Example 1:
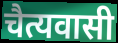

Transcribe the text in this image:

चैत्यवासी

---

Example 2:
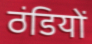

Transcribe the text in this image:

ठंडियों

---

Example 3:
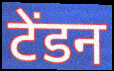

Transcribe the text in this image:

टेंडन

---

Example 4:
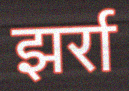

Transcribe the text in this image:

झर्रा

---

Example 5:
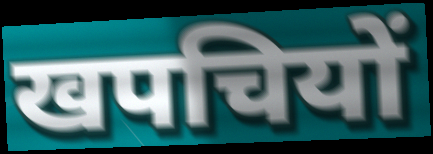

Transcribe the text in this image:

खपचियों